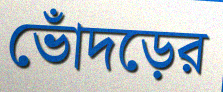
ভোঁদড়ের